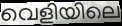
വെളിയിലെ